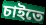
চাইতে